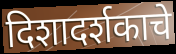
दिशादर्शकाचे